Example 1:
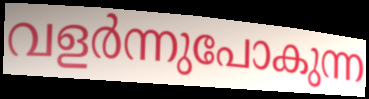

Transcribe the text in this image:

വളർന്നുപോകുന്ന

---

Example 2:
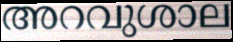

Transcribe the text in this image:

അറവുശാല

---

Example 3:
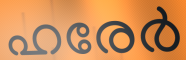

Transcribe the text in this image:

ഹരേർ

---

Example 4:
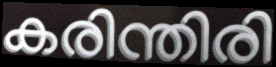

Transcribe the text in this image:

കരിന്തിരി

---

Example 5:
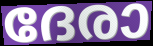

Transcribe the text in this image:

ദേരാ